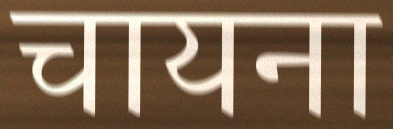
चायना